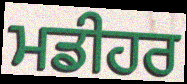
ਮਡੀਹਰ